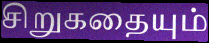
சிறுகதையும்